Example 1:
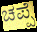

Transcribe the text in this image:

ಚಪ್ಪೆ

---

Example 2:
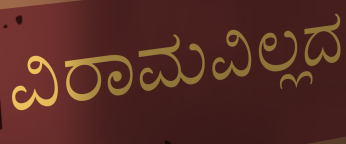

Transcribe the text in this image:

ವಿರಾಮವಿಲ್ಲದ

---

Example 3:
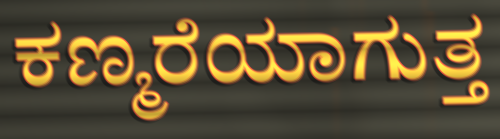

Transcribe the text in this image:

ಕಣ್ಮರೆಯಾಗುತ್ತ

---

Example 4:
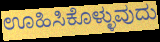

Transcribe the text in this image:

ಊಹಿಸಿಕೊಳ್ಳುವುದು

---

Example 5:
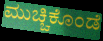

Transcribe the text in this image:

ಮುಚ್ಚಿಕೊಂಡೆ